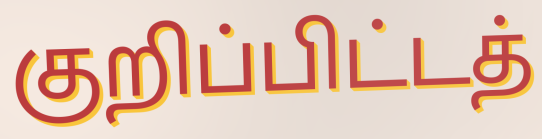
குறிப்பிட்டத்